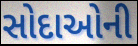
સોદાઓની